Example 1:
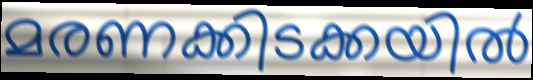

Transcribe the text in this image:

മരണക്കിടക്കയിൽ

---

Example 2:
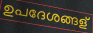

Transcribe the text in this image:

ഉപദേശങ്ങള്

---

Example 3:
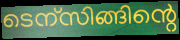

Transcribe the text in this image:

ടെന്സിങ്ങിന്റെ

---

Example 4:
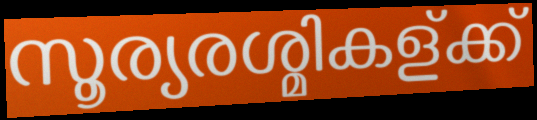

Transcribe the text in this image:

സൂര്യരശ്മികള്ക്ക്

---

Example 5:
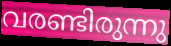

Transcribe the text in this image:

വരണ്ടിരുന്നു